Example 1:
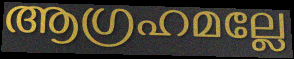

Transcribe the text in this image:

ആഗ്രഹമല്ലേ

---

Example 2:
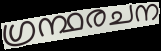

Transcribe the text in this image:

ഗ്രന്ഥരചന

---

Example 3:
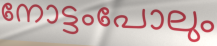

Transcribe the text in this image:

നോട്ടംപോലും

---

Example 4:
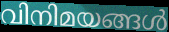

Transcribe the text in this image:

വിനിമയങ്ങൾ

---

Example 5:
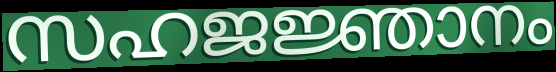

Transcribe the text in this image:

സഹജജ്ഞാനം